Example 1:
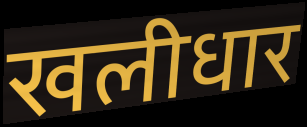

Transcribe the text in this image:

खलीधार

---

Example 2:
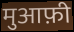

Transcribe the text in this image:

मुआफ़ी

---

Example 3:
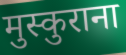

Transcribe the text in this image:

मुस्कुराना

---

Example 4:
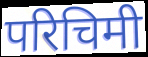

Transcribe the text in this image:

परिचिमी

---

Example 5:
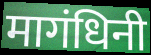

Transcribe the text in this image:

मागंधिनी